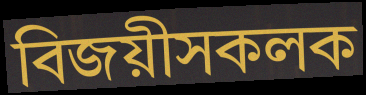
বিজয়ীসকলক